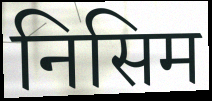
निसिम